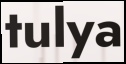
tulya